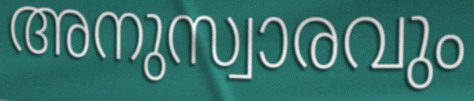
അനുസ്വാരവും